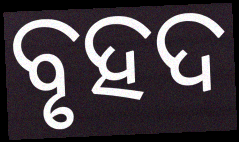
ବୃହଦ